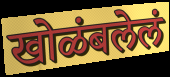
खोळंबलेलं